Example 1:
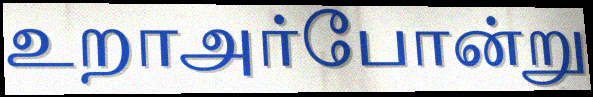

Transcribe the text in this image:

உறாஅர்போன்று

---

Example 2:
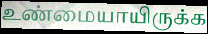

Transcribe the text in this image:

உண்மையாயிருக்க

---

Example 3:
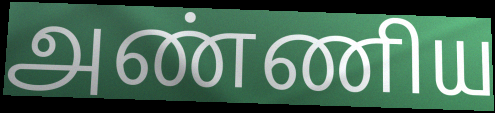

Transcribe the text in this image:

அண்ணிய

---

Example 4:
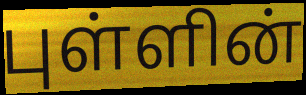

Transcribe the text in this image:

புள்ளின்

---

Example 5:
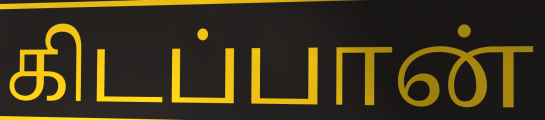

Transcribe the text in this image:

கிடப்பான்